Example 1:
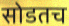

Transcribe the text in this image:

सोडतच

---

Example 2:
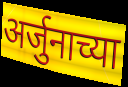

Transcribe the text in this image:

अर्जुनाच्या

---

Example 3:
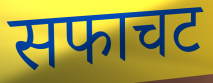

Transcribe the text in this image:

सफाचट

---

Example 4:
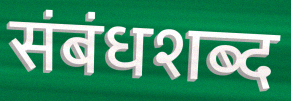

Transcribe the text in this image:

संबंधशब्द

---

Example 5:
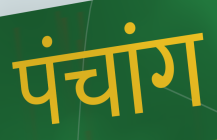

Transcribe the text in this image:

पंचांग